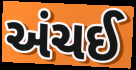
અંચઈ